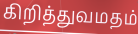
கிறித்துவமதம்